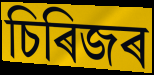
চিৰিজৰ